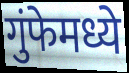
गुंफेमध्ये